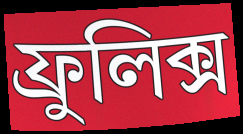
ফ্রুলিক্স